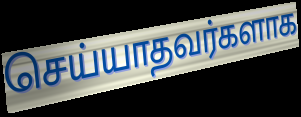
செய்யாதவர்களாக